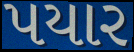
પયાર